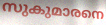
സുകുമാരനെ